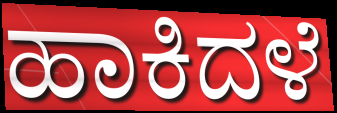
ಹಾಕಿದಳೆ